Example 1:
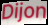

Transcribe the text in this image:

Dijon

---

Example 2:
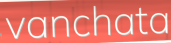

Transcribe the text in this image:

vanchata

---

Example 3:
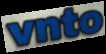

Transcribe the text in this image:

vnto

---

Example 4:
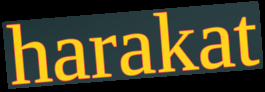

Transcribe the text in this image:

harakat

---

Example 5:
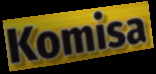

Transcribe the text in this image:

Komisa